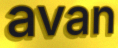
avan